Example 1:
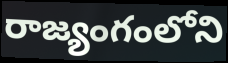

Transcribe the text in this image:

రాజ్యంగంలోని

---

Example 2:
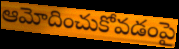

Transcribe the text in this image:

ఆమోదించుకోవడంపై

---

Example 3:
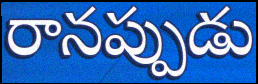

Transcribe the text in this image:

రానప్పుడు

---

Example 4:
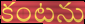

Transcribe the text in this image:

కంటను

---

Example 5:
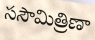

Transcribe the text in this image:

ససౌమిత్రిణా